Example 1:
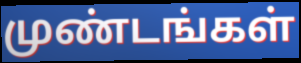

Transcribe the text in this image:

முண்டங்கள்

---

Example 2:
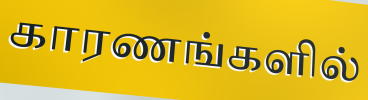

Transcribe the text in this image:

காரணங்களில்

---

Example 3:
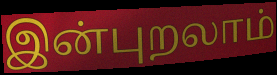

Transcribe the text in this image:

இன்புறலாம்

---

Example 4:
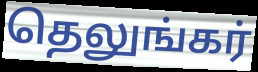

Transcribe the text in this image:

தெலுங்கர்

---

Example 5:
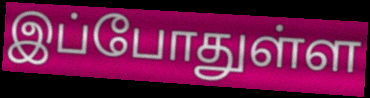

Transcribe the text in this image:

இப்போதுள்ள